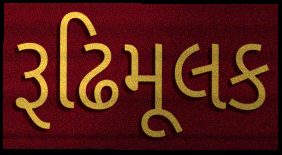
રૂઢિમૂલક